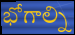
భోగాల్ని